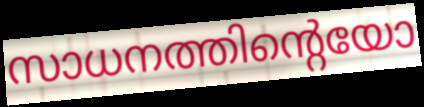
സാധനത്തിന്റെയോ